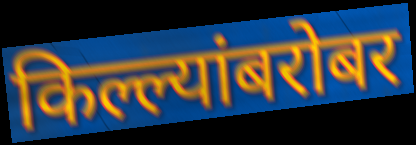
किल्ल्यांबरोबर